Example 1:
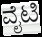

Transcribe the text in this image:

ವೈಟಿ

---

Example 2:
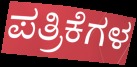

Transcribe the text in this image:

ಪತ್ರಿಕೆಗಳ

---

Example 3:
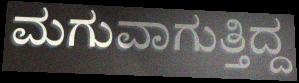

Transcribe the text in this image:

ಮಗುವಾಗುತ್ತಿದ್ದ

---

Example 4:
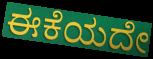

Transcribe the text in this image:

ಈಕೆಯದೇ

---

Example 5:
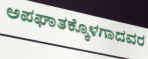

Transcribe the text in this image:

ಅಪಘಾತಕ್ಕೊಳಗಾದವರ